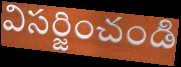
విసర్జించండి